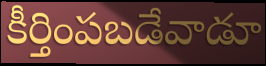
కీర్తింపబడేవాడూ